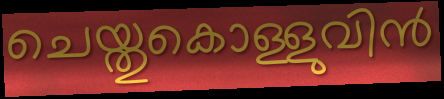
ചെയ്തുകൊള്ളുവിൻ